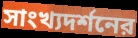
সাংখ্যদর্শনের